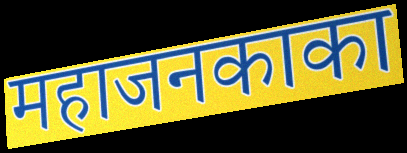
महाजनकाका